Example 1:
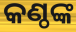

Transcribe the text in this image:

କଣ୍ଠଙ୍କ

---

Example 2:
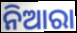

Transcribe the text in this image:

ନିଆରା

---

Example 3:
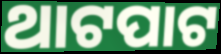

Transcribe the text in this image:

ଥାଟପାଟ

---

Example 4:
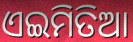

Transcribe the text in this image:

ଏଇମିତିଆ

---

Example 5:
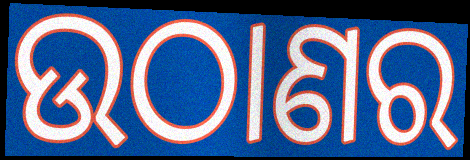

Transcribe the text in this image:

ଉଠାଣର